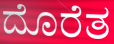
ದೊರೆತ